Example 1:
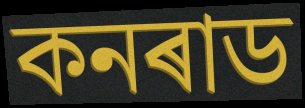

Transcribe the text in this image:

কনৰাড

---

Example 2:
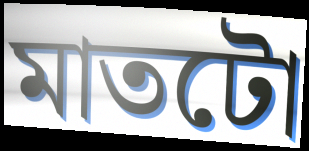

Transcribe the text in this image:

মাতটো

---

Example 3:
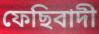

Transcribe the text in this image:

ফেছিবাদী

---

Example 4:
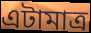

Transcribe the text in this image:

এটামাত্ৰ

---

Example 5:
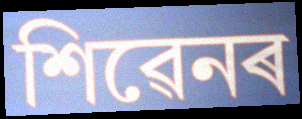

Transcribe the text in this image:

শিৱেনৰ